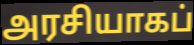
அரசியாகப்